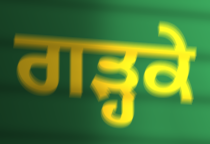
ਗੜ੍ਹਕੇ